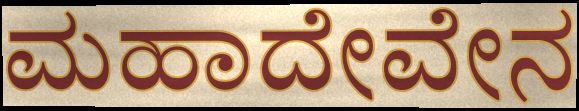
ಮಹಾದೇವೇನ